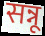
सन्नू